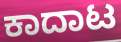
ಕಾದಾಟ